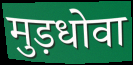
मुड़धोवा